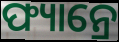
ଫ୍ୟାନ୍ରେ